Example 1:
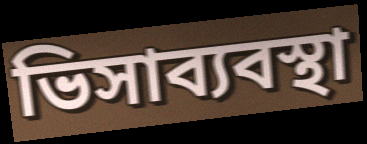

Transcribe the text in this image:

ভিসাব্যবস্থা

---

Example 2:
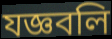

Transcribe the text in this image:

যজ্ঞবলি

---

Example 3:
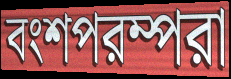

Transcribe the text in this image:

বংশপরম্পরা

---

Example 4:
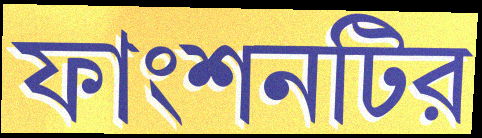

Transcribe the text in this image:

ফাংশনটির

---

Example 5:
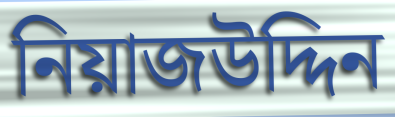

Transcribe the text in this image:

নিয়াজউদ্দিন